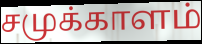
சமுக்காளம்